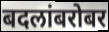
बदलांबरोबर